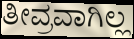
ತೀವ್ರವಾಗಿಲ್ಲ